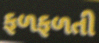
ફળફળતી